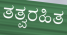
ತತ್ವರಹಿತ